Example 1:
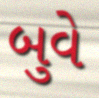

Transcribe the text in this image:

બુવે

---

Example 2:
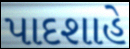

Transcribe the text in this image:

પાદશાહે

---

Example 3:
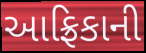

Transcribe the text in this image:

આફ્રિકાની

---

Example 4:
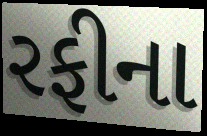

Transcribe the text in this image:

રફીના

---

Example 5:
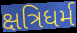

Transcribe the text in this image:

ક્ષત્રિધર્મ